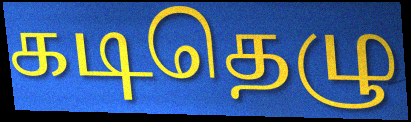
கடிதெழு